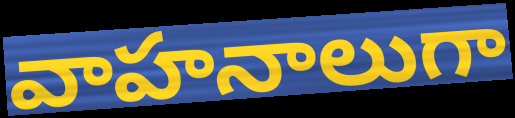
వాహనాలుగా